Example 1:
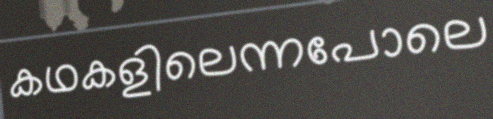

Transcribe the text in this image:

കഥകളിലെന്നപോലെ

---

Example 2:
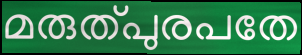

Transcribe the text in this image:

മരുത്പുരപതേ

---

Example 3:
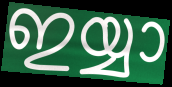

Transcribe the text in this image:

ഇയ്യാ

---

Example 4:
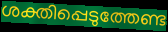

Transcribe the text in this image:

ശക്തിപ്പെടുത്തേണ്ട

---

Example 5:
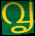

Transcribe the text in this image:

വൃ